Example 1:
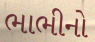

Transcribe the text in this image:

ભાભીનો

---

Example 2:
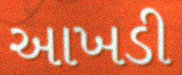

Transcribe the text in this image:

આખડી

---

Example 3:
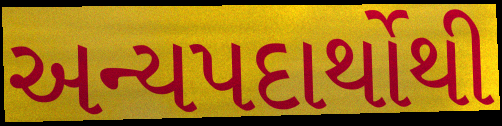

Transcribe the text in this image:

અન્યપદાર્થોથી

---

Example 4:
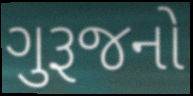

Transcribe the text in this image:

ગુરૂજનો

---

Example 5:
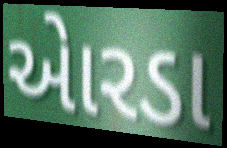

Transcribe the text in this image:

એારડા